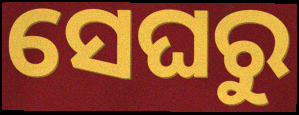
ସେଘରୁ